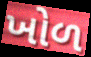
ખોળ